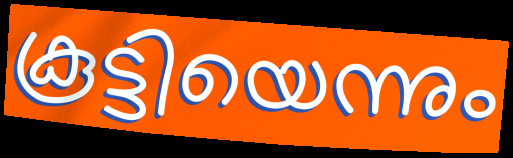
കൂട്ടിയെന്നും